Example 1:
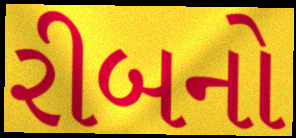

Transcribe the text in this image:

રીબનો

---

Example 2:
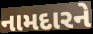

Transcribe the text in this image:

નામદારને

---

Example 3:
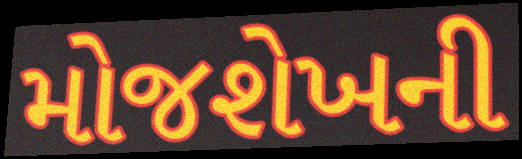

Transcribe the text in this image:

મોજશેખની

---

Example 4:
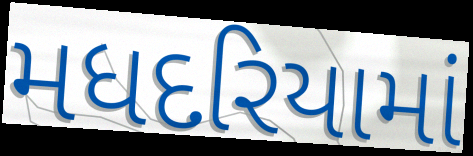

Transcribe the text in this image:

મધદરિયામાં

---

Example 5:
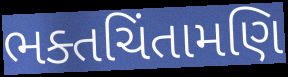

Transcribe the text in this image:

ભક્તચિંતામણિ